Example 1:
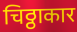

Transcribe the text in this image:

चिठ्ठाकार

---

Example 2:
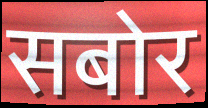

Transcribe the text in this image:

सबोर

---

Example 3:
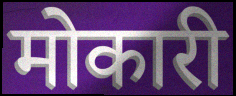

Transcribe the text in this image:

मोकारी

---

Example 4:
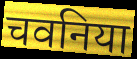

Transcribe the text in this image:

चवनिया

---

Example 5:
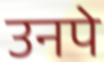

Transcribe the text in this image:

उनपे